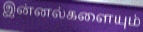
இன்னல்களையும்